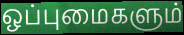
ஒப்புமைகளும்